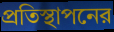
প্রতিস্থাপনের